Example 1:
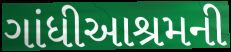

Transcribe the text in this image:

ગાંધીઆશ્રમની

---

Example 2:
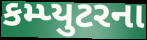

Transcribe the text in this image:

કમ્પ્યુટરના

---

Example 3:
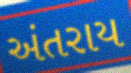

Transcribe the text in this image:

અંતરાય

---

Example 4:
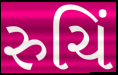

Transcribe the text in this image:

રુચિં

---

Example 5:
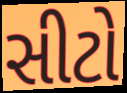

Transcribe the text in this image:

સીટો